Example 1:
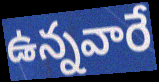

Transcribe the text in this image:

ఉన్నవారే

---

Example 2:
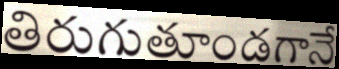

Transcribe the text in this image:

తిరుగుతూండగానే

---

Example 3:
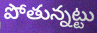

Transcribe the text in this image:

పోతున్నట్టు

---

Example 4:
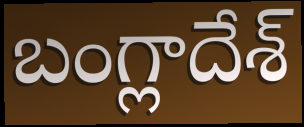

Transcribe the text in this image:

బంగ్లాదేశ్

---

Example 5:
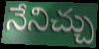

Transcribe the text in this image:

నేనిచ్చు